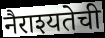
नैराश्यतेची